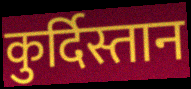
कुर्दिस्तान